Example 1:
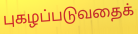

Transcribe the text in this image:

புகழப்படுவதைக்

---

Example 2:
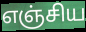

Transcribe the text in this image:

எஞ்சிய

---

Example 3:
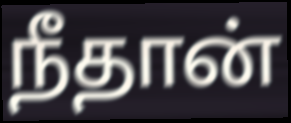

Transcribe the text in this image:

நீதான்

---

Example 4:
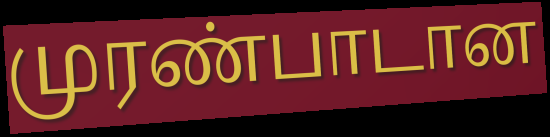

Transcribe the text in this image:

முரண்பாடான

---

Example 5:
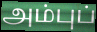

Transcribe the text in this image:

அம்புப்